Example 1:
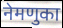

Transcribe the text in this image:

नेमणुका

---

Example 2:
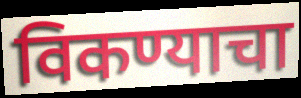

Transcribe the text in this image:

विकण्याचा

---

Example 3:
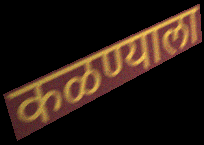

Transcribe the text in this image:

कळण्याला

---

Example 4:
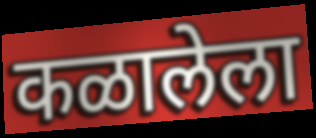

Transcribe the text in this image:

कळालेला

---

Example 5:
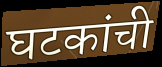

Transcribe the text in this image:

घटकांची